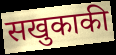
सखुकाकी